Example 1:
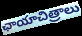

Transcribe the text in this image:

ఛాయాచిత్రాలు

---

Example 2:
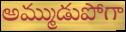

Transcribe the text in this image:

అమ్ముడుపోగా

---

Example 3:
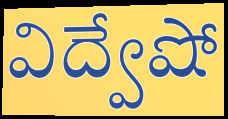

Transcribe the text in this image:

విద్వేషో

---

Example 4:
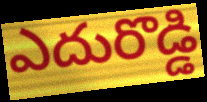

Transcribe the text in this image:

ఎదురొడ్డి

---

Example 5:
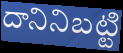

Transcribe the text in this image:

దానినిబట్టి